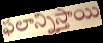
ఫలాన్నిస్తాయి